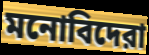
মনোবিদেরা